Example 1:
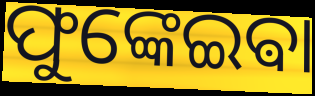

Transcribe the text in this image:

ଫୁଙ୍କେଇଵା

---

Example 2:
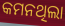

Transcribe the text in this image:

କମନଥିଲା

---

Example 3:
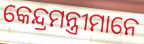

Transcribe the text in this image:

କେନ୍ଦ୍ରମନ୍ତ୍ରୀମାନେ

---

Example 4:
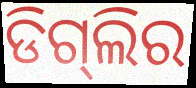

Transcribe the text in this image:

ଡିଗ୍‌ଲିର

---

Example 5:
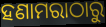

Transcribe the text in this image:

ହଣାମରାଠାରୁ